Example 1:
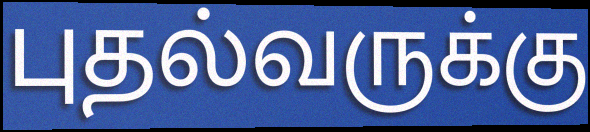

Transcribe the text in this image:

புதல்வருக்கு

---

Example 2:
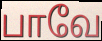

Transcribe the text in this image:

பாவே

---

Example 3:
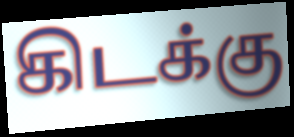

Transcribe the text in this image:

கிடக்கு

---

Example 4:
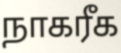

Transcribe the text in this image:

நாகரீக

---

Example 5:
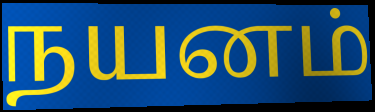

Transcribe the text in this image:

நயனம்